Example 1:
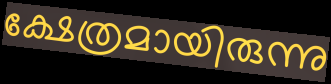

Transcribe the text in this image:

ക്ഷേത്രമായിരുന്നു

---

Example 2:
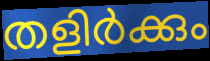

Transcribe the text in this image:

തളിർക്കും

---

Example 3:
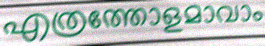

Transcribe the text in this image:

എത്രത്തോളമാവാം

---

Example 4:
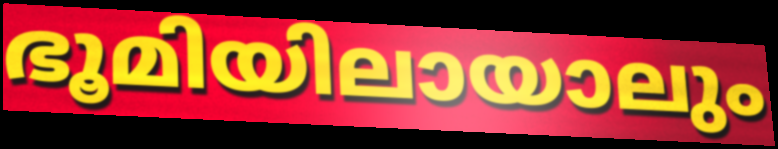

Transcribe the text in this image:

ഭൂമിയിലായാലും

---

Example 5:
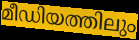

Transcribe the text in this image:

മീഡിയത്തിലും